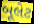
બૂલેટ